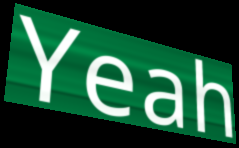
Yeah